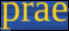
prae